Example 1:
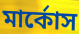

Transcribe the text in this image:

মার্কোস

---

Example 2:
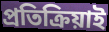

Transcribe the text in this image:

প্রতিক্রিয়াই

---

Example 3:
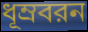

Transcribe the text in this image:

ধূম্রবরন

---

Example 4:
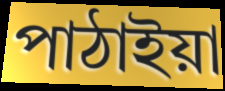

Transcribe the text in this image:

পাঠাইয়া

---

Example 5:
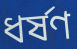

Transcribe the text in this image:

ধর্ষণ